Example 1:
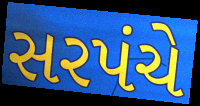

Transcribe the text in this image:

સરપંચે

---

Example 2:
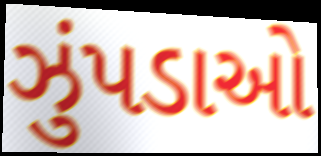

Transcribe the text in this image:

ઝુંપડાઓ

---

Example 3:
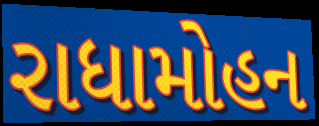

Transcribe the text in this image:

રાધામોહન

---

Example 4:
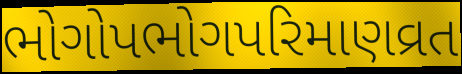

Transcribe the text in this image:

ભોગોપભોગપરિમાણવ્રત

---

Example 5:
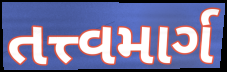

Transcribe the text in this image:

તત્ત્વમાર્ગ